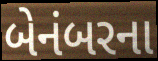
બેનંબરના